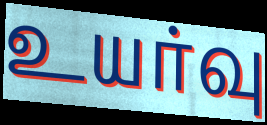
உயர்வு